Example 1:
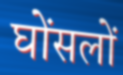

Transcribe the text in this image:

घोंसलों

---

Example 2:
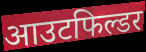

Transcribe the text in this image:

आउटफिल्डर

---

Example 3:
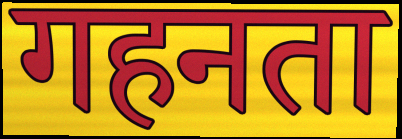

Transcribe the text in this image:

गहनता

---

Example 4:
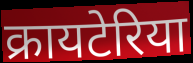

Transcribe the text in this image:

क्रायटेरिया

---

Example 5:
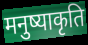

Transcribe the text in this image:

मनुष्याकृति